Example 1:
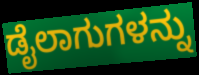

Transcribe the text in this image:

ಡೈಲಾಗುಗಳನ್ನು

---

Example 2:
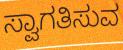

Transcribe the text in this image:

ಸ್ವಾಗತಿಸುವ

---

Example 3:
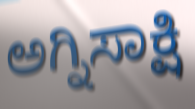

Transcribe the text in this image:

ಅಗ್ನಿಸಾಕ್ಷಿ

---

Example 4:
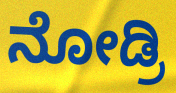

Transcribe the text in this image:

ನೋಡ್ರಿ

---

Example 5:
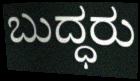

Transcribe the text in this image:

ಬುದ್ಧರು